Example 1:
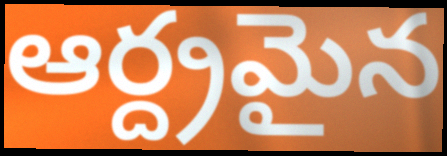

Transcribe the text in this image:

ఆర్ద్రమైన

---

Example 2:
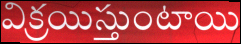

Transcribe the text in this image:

విక్రయిస్తుంటాయి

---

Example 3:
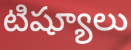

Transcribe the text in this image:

టిష్యూలు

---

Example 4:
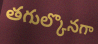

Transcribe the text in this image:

తగుల్కొనగా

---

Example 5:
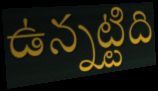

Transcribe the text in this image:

ఉన్నట్టిది